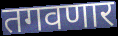
तगवणार